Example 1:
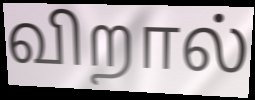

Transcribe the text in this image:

விறால்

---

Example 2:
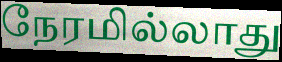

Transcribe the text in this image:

நேரமில்லாது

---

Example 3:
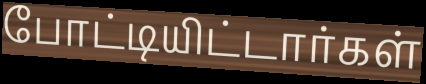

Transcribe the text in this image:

போட்டியிட்டார்கள்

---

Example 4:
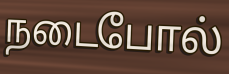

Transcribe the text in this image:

நடைபோல்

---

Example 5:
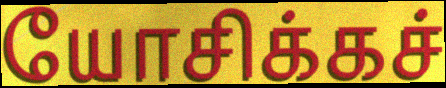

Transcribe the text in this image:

யோசிக்கச்